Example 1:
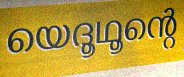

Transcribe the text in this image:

യെദൂഥൂന്റെ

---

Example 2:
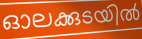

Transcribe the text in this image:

ഓലക്കുടയിൽ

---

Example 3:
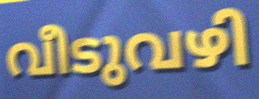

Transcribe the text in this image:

വീടുവഴി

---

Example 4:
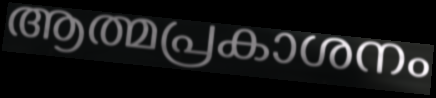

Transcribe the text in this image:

ആത്മപ്രകാശനം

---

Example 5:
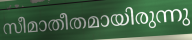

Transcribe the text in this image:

സീമാതീതമായിരുന്നു